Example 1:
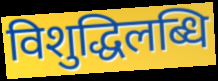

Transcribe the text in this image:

विशुद्धिलब्धि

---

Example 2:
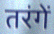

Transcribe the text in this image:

तरंगें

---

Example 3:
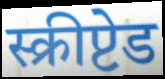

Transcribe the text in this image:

स्क्रीप्टेड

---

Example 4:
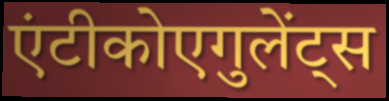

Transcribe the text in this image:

एंटीकोएगुलेंट्स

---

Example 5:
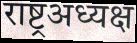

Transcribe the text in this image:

राष्ट्रअध्यक्ष